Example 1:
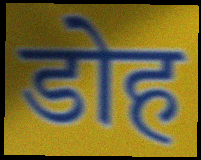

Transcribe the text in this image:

डोह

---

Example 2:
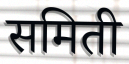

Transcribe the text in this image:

समिती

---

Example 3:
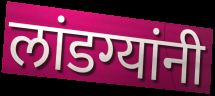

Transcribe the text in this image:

लांडग्यांनी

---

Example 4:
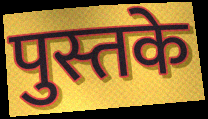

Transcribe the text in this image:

पुस्‍तके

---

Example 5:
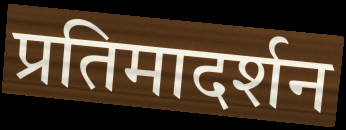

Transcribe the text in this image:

प्रतिमादर्शन